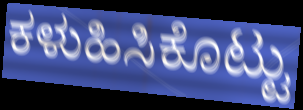
ಕಳುಹಿಸಿಕೊಟ್ಟು